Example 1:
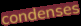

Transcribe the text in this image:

condenses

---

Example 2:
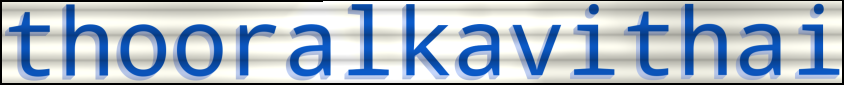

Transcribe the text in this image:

thooralkavithai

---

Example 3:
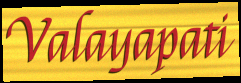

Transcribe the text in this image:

Valayapati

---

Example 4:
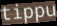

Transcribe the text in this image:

tippu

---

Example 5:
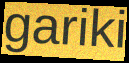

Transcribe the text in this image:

gariki